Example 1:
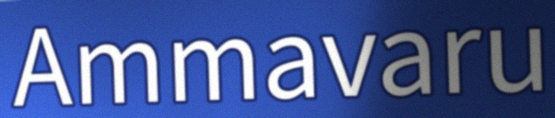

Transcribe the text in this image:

Ammavaru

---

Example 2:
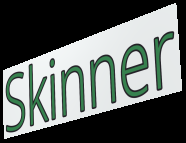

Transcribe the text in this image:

Skinner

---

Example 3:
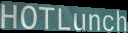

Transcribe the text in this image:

HOTLunch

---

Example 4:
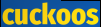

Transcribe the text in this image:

cuckoos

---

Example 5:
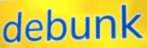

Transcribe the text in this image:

debunk